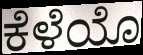
ಕೆಳೆಯೊ